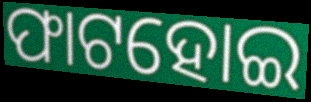
ଫାଟହୋଇ